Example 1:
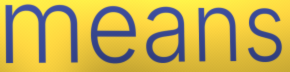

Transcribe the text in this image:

means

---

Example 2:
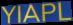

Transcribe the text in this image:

YIAPL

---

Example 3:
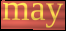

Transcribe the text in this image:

may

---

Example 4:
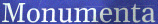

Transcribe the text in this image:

Monumenta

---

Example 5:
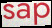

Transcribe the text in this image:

sap